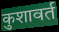
कुशावर्त